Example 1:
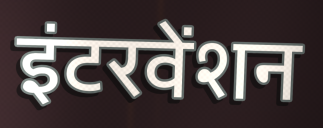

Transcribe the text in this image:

इंटरवेंशन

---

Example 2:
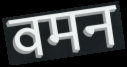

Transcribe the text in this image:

वमन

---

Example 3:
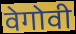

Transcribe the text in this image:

वेगोवी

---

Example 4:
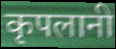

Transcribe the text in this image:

कृपलानी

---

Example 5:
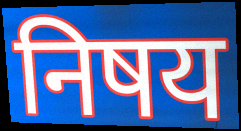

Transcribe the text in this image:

निषय